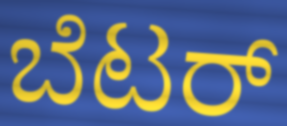
ಬೆಟರ್